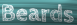
Beards